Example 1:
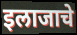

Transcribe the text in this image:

इलाजाचे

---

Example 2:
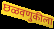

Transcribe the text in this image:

छळवणुकीला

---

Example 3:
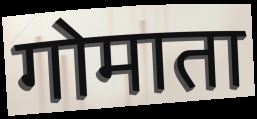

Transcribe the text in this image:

गोमाता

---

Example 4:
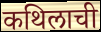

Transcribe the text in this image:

कथिलाची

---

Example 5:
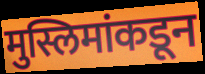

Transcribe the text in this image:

मुस्लिमांकडून